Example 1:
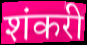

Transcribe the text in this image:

शंकरी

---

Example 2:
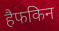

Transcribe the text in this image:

हैफकिन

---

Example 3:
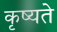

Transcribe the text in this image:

कृष्यते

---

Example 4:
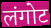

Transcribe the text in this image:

लंगोट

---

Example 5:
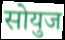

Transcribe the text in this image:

सोयुज